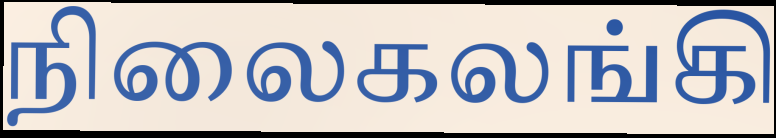
நிலைகலங்கி